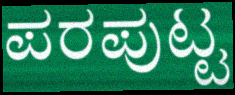
ಪರಪುಟ್ಟ